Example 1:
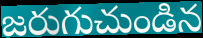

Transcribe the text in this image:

జరుగుచుండిన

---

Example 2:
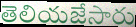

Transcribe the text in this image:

తెలియజేసారు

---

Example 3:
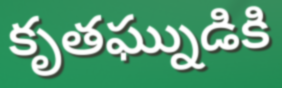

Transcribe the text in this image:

కృతఘ్నుడికి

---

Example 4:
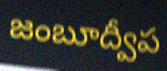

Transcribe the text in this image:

జంబూద్వీప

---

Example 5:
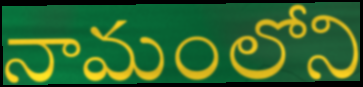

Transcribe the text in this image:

నామంలోని